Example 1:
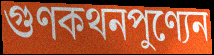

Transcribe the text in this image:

গুণকথনপুণ্যেন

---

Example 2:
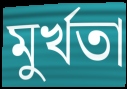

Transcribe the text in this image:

মুর্খতা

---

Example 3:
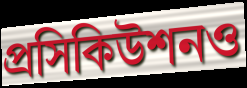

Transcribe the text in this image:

প্রসিকিউশনও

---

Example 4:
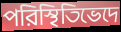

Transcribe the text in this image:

পরিস্থিতিভেদে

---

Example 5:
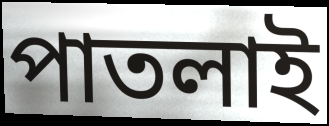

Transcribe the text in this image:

পাতলাই